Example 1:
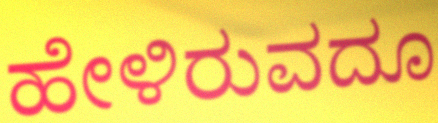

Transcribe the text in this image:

ಹೇಳಿರುವದೂ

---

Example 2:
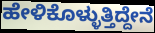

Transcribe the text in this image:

ಹೇಳಿಕೊಳ್ಳುತ್ತಿದ್ದೇನೆ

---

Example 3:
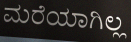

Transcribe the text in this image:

ಮರೆಯಾಗಿಲ್ಲ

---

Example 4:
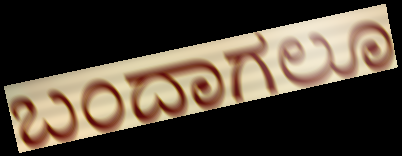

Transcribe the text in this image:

ಬಂದಾಗಲೂ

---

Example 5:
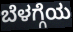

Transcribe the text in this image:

ಬೆಳಗ್ಗೆಯ